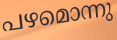
പഴമൊന്നു